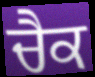
ਚੈਕ